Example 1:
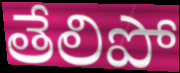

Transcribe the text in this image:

తేలిపో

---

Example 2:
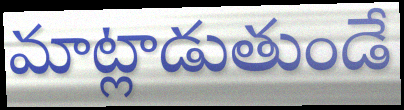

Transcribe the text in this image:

మాట్లాడుతుండే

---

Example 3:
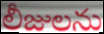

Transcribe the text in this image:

లీజులను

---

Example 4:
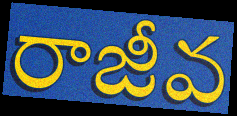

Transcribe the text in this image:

రాజీవ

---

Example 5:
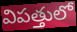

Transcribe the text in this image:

విపత్తులో